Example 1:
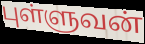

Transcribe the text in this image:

புள்ளுவன்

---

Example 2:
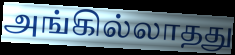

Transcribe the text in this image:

அங்கில்லாதது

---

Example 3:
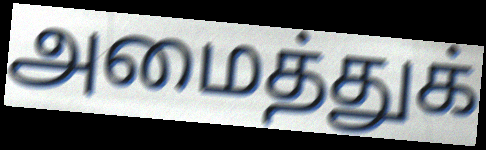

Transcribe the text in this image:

அமைத்துக்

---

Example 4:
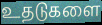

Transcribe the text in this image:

உதடுகளை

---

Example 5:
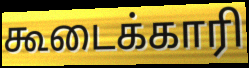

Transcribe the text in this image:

கூடைக்காரி